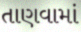
તાણવામાં